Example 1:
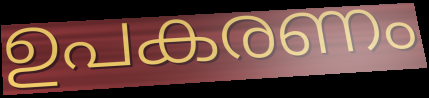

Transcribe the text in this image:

ഉപകരണം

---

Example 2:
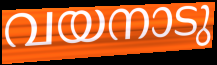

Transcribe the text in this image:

വയനാടു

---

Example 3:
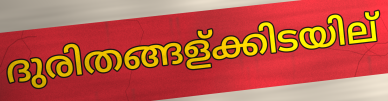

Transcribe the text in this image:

ദുരിതങ്ങള്ക്കിടയില്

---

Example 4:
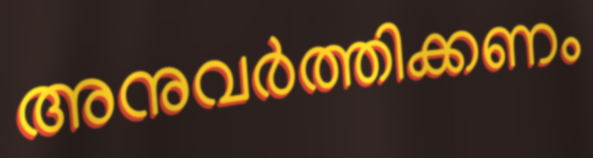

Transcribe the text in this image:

അനുവർത്തിക്കണം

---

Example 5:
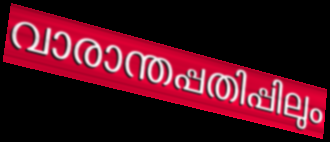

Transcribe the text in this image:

വാരാന്തപ്പതിപ്പിലും